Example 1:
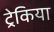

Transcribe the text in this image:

ट्रेकिया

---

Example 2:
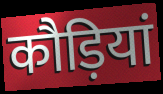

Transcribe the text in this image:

कौड़ियां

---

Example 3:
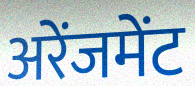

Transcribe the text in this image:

अरेंजमेंट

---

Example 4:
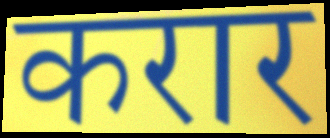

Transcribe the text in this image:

करार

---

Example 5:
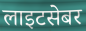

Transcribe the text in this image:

लाइटसेबर